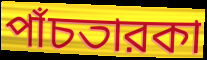
পাঁচতারকা